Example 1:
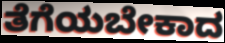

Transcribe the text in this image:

ತೆಗೆಯಬೇಕಾದ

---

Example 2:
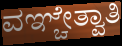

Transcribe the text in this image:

ವಞ್ಚೇತ್ವಾತಿ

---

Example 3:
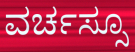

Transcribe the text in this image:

ವರ್ಚಸ್ಸೂ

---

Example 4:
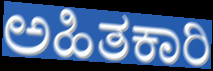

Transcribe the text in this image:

ಅಹಿತಕಾರಿ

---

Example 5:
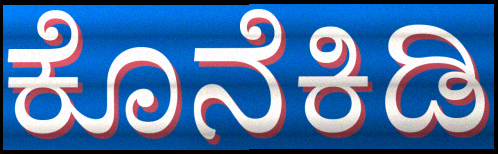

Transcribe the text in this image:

ಕೊನೆಕಿಡಿ